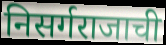
निसर्गराजाची